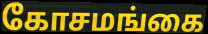
கோசமங்கை